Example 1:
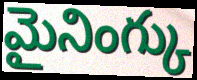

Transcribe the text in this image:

మైనింగ్కు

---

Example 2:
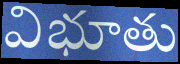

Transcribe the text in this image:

విభూతు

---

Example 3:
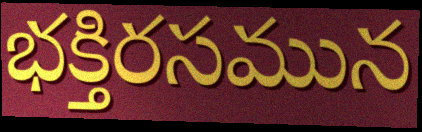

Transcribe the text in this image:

భక్తిరసమున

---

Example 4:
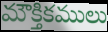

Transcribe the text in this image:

మౌక్తికములు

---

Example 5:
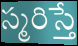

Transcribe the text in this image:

స్మరిస్తే